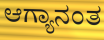
ಆಗ್ಯಾನಂತ